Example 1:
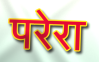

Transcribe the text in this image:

परेरा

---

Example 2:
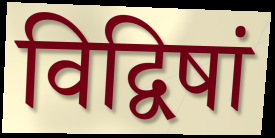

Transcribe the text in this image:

विद्विषां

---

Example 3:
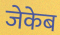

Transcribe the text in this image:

जेकेब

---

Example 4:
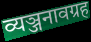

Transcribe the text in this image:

व्यञ्जनावग्रह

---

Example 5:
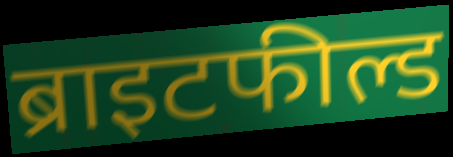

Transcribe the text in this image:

ब्राइटफील्ड